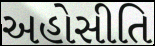
અહોસીતિ